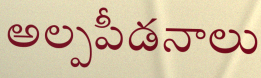
అల్పపీడనాలు